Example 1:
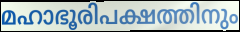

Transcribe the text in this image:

മഹാഭൂരിപക്ഷത്തിനും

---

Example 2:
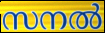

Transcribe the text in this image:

സനൽ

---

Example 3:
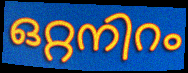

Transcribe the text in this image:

ഒറ്റനിറം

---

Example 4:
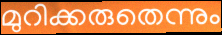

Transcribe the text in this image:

മുറിക്കരുതെന്നും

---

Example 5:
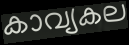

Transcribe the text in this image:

കാവ്യകല